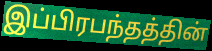
இப்பிரபந்தத்தின்